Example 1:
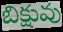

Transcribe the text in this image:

బిక్షువు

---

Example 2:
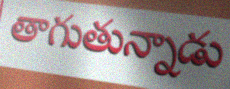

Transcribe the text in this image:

తాగుతున్నాడు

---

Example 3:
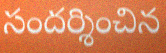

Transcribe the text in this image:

సందర్శించిన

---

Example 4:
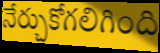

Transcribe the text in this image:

నేర్చుకోగలిగింది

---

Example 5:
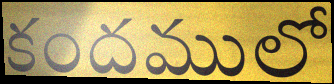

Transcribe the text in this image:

కందములో